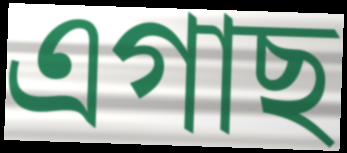
এগাছ